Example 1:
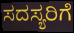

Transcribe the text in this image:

ಸದಸ್ಯರಿಗೆ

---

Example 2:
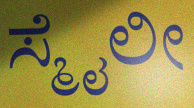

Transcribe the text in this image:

ಸ್ಮೈಲೀ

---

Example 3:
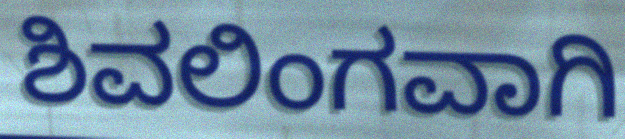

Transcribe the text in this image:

ಶಿವಲಿಂಗವಾಗಿ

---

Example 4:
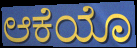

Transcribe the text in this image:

ಆಕೆಯೊ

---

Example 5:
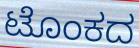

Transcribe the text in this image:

ಟೊಂಕದ